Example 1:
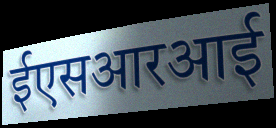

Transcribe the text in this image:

ईएसआरआई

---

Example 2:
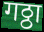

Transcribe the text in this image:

गठ्ठा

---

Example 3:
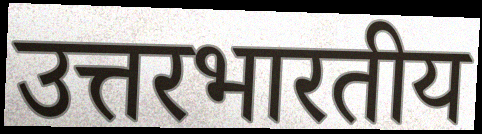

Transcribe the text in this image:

उत्तरभारतीय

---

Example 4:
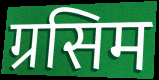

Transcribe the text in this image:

ग्रसिम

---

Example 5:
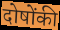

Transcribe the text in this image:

दोषोंकी